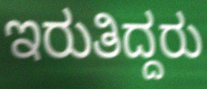
ಇರುತಿದ್ದರು